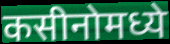
कसीनोमध्ये